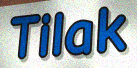
Tilak